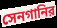
সেনগানির